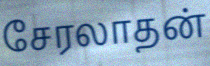
சேரலாதன்